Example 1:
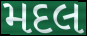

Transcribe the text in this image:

મદલ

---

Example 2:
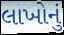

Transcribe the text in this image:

લાખોનું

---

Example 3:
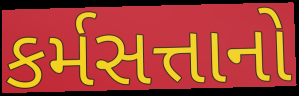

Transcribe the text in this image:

કર્મસત્તાનો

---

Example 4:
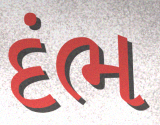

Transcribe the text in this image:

દંભ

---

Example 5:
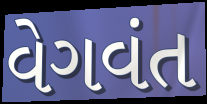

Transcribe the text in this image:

વેગવંત